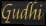
Gudhi